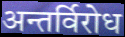
अन्तर्विरोध